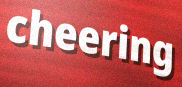
cheering